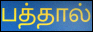
பத்தால்